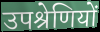
उपश्रेणियों